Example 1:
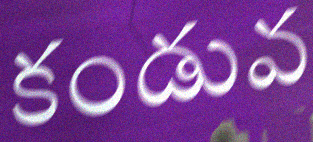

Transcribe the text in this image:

కండువ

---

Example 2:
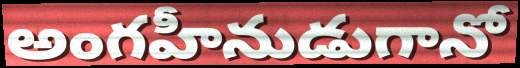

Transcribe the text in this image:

అంగహీనుడుగానో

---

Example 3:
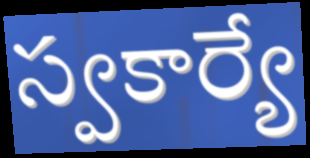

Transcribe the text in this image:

స్వకార్యే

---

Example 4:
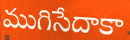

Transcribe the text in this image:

ముగిసేదాకా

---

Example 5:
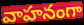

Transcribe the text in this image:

వాహనంగా